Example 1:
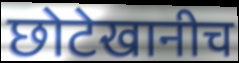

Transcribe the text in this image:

छोटेखानीच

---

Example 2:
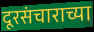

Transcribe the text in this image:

दूरसंचाराच्या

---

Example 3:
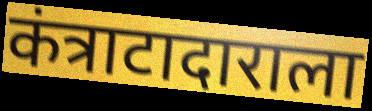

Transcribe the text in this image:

कंत्राटादाराला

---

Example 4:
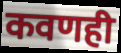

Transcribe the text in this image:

कवणही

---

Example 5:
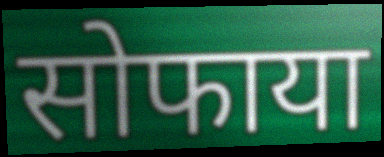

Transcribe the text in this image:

सोफाया